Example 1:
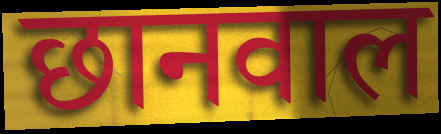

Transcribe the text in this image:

छानवाल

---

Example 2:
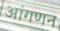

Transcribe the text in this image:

आंगणन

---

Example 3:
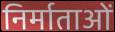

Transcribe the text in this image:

निर्माताओं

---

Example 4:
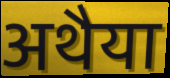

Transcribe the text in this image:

अथैया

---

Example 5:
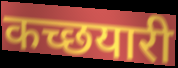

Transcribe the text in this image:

कच्छयारी